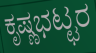
ಕೃಷ್ಣಭಟ್ಟರ